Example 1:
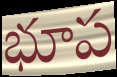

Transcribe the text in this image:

భూప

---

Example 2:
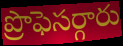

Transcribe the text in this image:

ప్రొఫెసర్గారు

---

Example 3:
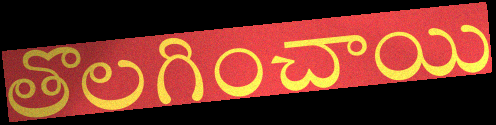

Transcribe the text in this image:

తొలగించాయి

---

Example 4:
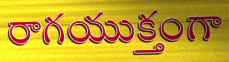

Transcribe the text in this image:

రాగయుక్తంగా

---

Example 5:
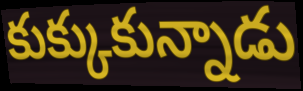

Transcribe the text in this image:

కుక్కుకున్నాడు